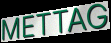
METTAG